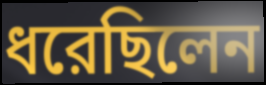
ধরেছিলেন